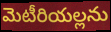
మెటీరియల్లను